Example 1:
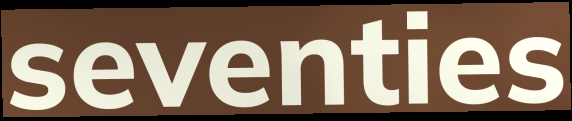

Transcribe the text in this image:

seventies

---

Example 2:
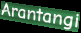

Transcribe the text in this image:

Arantangi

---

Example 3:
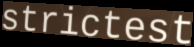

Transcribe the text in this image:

strictest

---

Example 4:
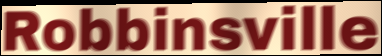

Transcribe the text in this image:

Robbinsville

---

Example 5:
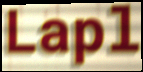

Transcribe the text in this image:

Lapl